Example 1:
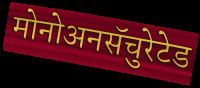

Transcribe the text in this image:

मोनोअनसॅचुरेटेड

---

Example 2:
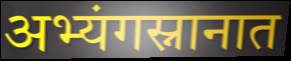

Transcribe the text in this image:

अभ्यंगस्नानात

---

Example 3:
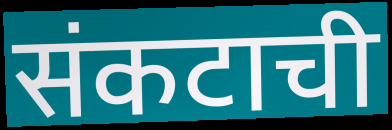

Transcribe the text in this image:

संकटाची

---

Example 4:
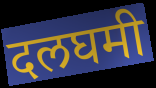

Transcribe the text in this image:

दलघमी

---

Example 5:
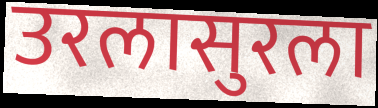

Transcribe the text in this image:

उरलासुरला